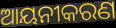
ଆୟନୀକରଣ